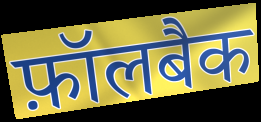
फ़ॉलबैक